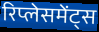
रिप्लेसमेंट्स